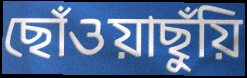
ছোঁওয়াছুঁয়ি